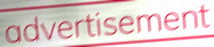
advertisement